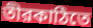
তীরকাঠিতে